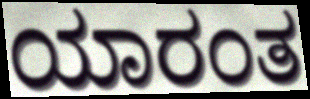
ಯಾರಂತ